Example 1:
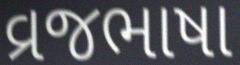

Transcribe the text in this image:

વ્રજભાષા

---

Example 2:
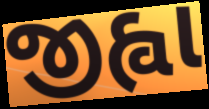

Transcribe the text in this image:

જીહ્વા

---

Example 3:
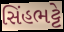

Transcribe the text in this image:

સિંહભટ્ટે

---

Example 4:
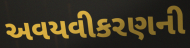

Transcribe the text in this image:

અવયવીકરણની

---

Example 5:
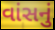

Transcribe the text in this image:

વાંસનું